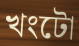
খংটো